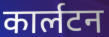
कार्लटन